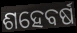
ଶହେବର୍ଷ